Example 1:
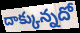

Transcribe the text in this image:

దాక్కున్నదో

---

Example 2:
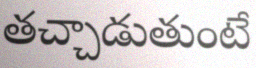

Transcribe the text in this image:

తచ్చాడుతుంటే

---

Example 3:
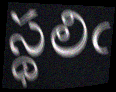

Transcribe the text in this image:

స్థలిఁ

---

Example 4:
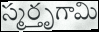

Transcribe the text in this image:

స్మర్తృగామి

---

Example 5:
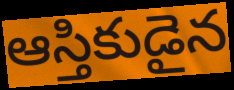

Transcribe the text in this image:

ఆస్తికుడైన